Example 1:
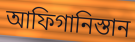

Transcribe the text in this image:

আফিগানিস্তান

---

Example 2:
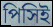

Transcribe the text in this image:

পিসিই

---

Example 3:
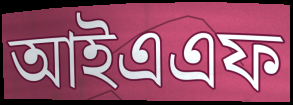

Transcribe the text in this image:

আইএএফ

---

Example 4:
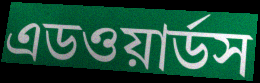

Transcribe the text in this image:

এডওয়ার্ডস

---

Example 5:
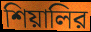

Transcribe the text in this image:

শিয়ালির